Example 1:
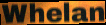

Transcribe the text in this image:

Whelan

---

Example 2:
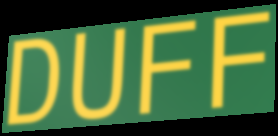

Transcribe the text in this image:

DUFF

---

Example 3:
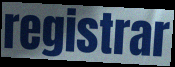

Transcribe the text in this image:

registrar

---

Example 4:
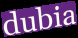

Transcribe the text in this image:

dubia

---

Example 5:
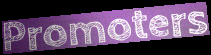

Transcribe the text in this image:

Promoters